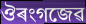
ঔৰংগজেৱ